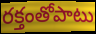
రక్తంతోపాటు